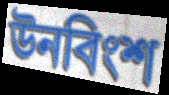
উনবিংশ